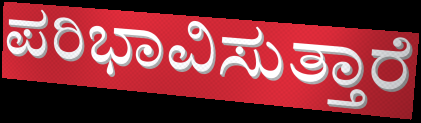
ಪರಿಭಾವಿಸುತ್ತಾರೆ